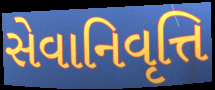
સેવાનિવૃત્તિ